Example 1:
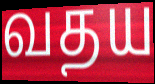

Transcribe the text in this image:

வதய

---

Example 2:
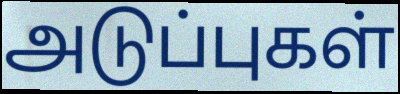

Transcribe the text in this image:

அடுப்புகள்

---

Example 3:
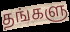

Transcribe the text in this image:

தங்களு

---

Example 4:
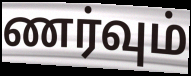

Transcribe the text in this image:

ணர்வும்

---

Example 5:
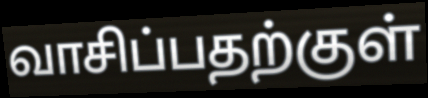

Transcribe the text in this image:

வாசிப்பதற்குள்